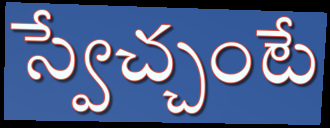
స్వేచ్చంటే